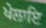
ਖੇਲਾਇ